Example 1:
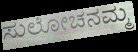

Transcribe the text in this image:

ಸುಲೋಚನಮ್ಮ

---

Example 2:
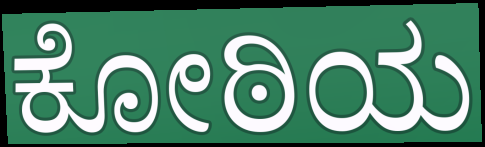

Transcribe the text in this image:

ಕೋಠಿಯ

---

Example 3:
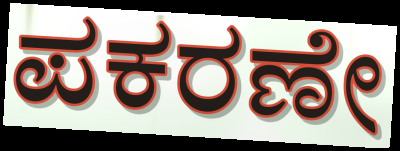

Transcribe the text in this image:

ಪಕರಣೇ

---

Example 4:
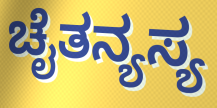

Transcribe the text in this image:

ಚೈತನ್ಯಸ್ಯ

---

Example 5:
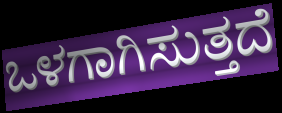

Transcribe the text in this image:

ಒಳಗಾಗಿಸುತ್ತದೆ